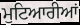
ਮੁਟਿਆਰੀਆਂ